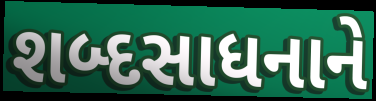
શબ્દસાધનાને